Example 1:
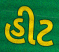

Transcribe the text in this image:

હીટ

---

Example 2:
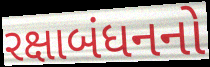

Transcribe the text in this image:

રક્ષાબંધનનો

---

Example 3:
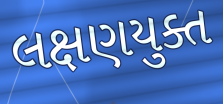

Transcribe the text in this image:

લક્ષણયુક્ત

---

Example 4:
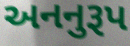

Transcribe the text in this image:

અનનુરૂપ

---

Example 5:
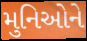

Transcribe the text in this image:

મુનિઓને